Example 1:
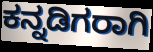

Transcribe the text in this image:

ಕನ್ನಡಿಗರಾಗಿ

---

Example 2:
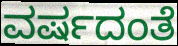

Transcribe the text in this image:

ವರ್ಷದಂತೆ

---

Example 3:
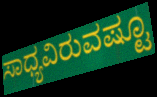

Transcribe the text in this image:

ಸಾಧ್ಯವಿರುವಷ್ಟೂ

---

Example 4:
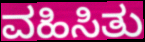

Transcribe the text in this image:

ವಹಿಸಿತು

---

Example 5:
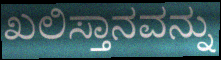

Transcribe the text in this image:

ಖಲಿಸ್ತಾನವನ್ನು